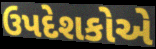
ઉપદેશકોએ